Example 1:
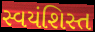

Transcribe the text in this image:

સ્વયંશિસ્ત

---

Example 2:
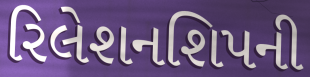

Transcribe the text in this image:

રિલેશનશિપની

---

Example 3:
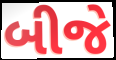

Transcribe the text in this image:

બીજે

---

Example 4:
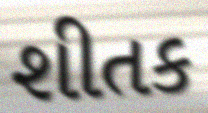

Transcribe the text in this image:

શીતક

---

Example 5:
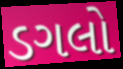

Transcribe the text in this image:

ડગલો